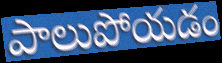
పాలుపోయడం